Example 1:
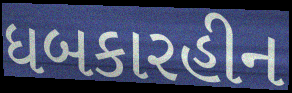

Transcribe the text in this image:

ધબકારહીન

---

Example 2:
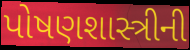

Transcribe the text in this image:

પોષણશાસ્ત્રીની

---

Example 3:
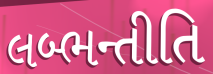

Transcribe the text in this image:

લબ્ભન્તીતિ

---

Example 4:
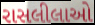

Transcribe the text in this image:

રાસલીલાઓ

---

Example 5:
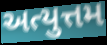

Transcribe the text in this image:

અત્યુત્તમ